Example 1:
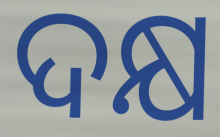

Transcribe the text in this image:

ଦକ୍ଷ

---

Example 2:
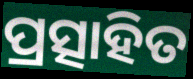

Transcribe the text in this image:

ପ୍ରତ୍ସାହିତ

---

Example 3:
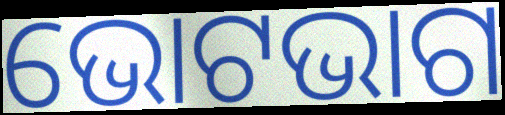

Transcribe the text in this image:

ଭୋଟଭାଗ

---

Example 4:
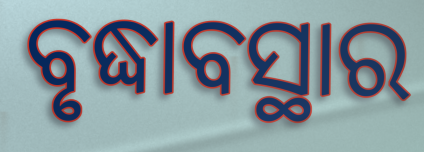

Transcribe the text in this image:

ବୃଦ୍ଧାବସ୍ଥାର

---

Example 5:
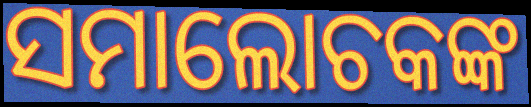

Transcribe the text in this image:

ସମାଲୋଚକଙ୍କ